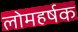
लोमहर्षक